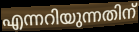
എന്നറിയുന്നതിന്